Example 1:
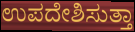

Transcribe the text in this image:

ಉಪದೇಶಿಸುತ್ತಾ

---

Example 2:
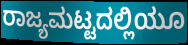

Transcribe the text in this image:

ರಾಜ್ಯಮಟ್ಟದಲ್ಲಿಯೂ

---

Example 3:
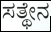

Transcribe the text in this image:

ಸತ್ಥೇನ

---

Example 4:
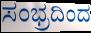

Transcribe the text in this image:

ಸಂಭ್ರದಿಂದ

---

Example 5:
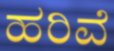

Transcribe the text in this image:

ಹರಿವೆ